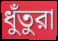
ধুঁতুরা